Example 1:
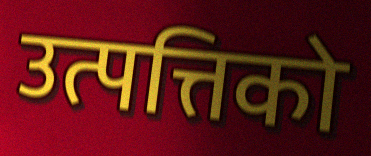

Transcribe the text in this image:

उत्पत्तिको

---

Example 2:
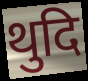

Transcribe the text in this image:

थुदि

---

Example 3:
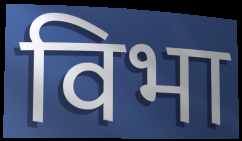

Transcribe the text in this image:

विभा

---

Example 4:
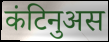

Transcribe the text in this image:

कंटिनुअस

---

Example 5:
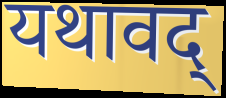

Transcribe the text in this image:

यथावद्